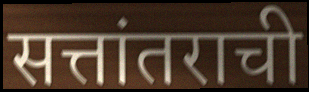
सत्तांतराची